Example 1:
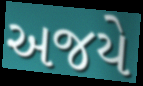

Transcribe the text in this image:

અજયે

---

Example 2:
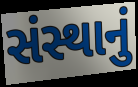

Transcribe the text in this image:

સંસ્થાનું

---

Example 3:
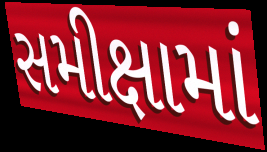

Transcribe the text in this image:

સમીક્ષામાં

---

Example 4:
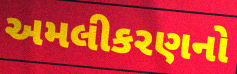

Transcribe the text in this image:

અમલીકરણનો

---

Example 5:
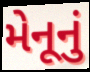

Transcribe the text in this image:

મેનૂનું